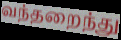
வந்தறைந்து